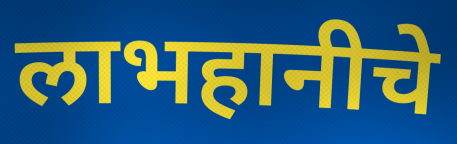
लाभहानीचे